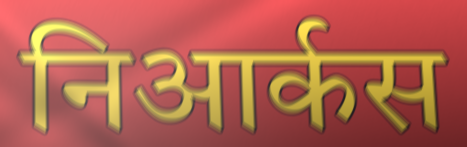
निआर्कस